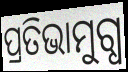
ପ୍ରତିଭାମୁଗ୍ଧ